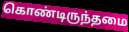
கொண்டிருந்தமை